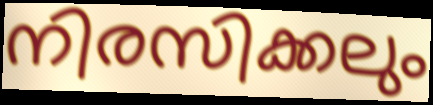
നിരസിക്കലും